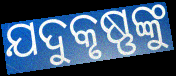
ଯଦୁକୃଷ୍ଣଙ୍କୁ